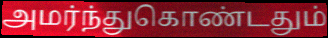
அமர்ந்துகொண்டதும்